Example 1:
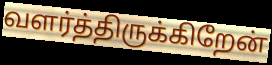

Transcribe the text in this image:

வளர்த்திருக்கிறேன்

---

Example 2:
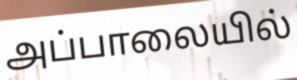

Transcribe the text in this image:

அப்பாலையில்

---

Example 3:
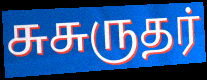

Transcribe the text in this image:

சுசுருதர்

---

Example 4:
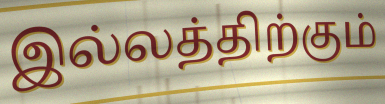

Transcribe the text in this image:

இல்லத்திற்கும்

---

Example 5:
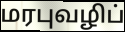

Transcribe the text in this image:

மரபுவழிப்